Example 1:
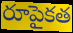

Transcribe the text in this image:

రూపైకత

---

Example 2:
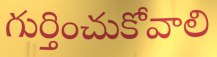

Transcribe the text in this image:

గుర్తించుకోవాలి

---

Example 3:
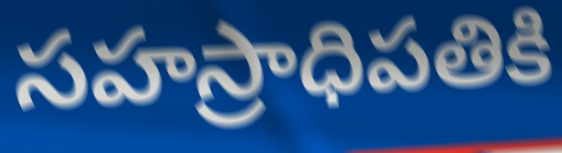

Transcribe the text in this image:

సహస్రాధిపతికి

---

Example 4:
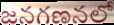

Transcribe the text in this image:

జనగణనలో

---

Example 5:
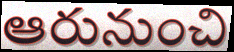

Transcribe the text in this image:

ఆరునుంచి